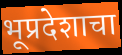
भूप्रदेशाचा